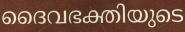
ദൈവഭക്തിയുടെ